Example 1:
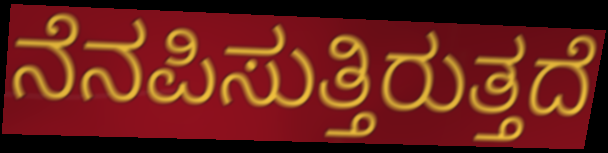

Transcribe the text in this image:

ನೆನಪಿಸುತ್ತಿರುತ್ತದೆ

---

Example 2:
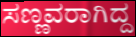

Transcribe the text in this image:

ಸಣ್ಣವರಾಗಿದ್ದ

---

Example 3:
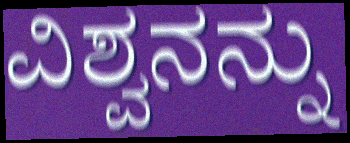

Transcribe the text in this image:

ವಿಶ್ವನನ್ನು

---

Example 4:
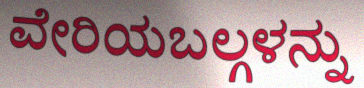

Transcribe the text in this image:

ವೇರಿಯಬಲ್ಗಳನ್ನು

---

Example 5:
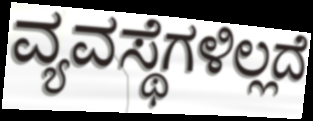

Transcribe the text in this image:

ವ್ಯವಸ್ಥೆಗಳಿಲ್ಲದೆ